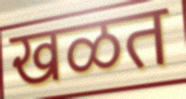
खळत